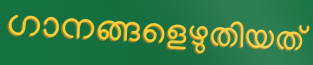
ഗാനങ്ങളെഴുതിയത്